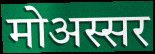
मोअस्सर